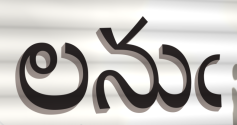
లనుఁ